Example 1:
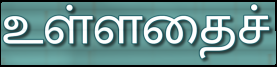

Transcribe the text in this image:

உள்ளதைச்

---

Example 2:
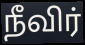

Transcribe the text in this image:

நீவிர்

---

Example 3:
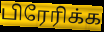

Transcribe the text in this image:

பிரேரிக்க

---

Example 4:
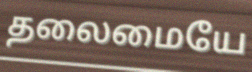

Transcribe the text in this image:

தலைமையே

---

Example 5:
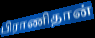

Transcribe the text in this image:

பிராணிதான்